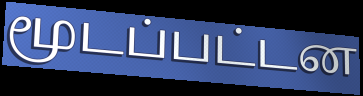
மூடப்பட்டன